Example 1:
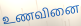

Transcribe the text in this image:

உணவினை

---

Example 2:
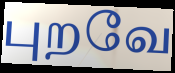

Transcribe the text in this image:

புறவே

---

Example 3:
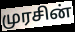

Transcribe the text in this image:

முரசின்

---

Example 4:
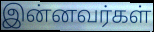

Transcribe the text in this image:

இன்னவர்கள்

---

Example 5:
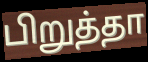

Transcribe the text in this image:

பிறுத்தா